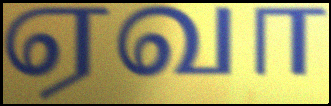
ஏவா